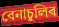
বেনাচুলিৰ